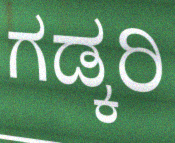
ಗಡ್ಕರಿ